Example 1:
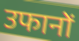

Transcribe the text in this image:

उफानों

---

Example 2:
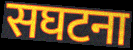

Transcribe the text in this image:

सघटना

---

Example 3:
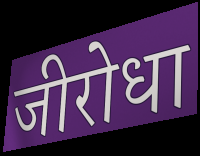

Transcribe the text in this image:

जीरोधा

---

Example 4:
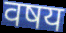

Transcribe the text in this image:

वषय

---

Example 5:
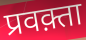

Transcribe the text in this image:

प्रवक़्ता